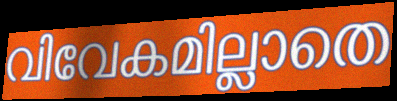
വിവേകമില്ലാതെ